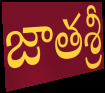
జాతశ్రీ